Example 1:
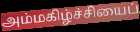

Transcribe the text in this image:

அம்மகிழ்ச்சியைப்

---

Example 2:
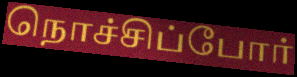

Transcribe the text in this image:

நொச்சிப்போர்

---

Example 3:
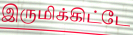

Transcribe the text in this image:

இருமிக்கிட்டே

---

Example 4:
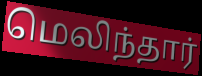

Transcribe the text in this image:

மெலிந்தார்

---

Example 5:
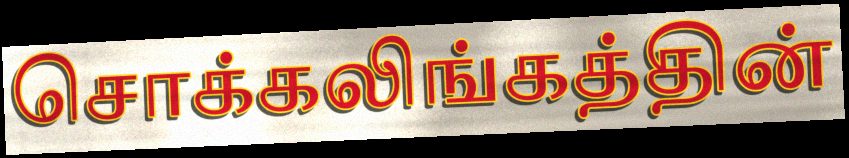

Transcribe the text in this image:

சொக்கலிங்கத்தின்